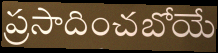
ప్రసాదించబోయే